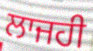
ਲਾਜਹੀ